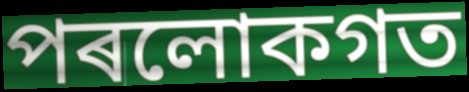
পৰলোকগত